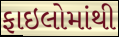
ફાઇલોમાંથી